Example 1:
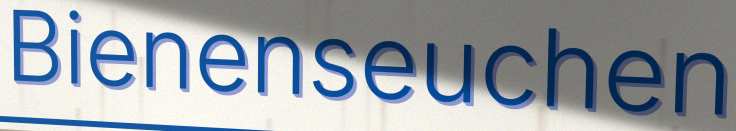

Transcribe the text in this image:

Bienenseuchen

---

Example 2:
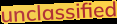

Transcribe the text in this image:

unclassified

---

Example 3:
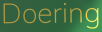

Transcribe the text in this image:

Doering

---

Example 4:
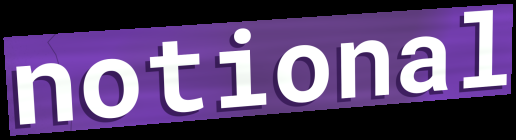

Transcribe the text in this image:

notional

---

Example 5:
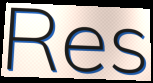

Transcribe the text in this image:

Res